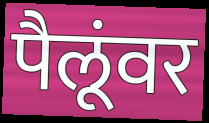
पैलूंवर